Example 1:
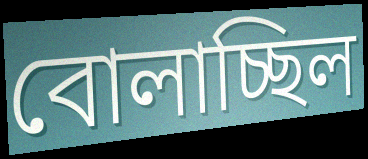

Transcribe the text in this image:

বোলাচ্ছিল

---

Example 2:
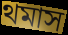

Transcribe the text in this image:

থমাস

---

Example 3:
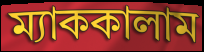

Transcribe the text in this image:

ম্যাককালাম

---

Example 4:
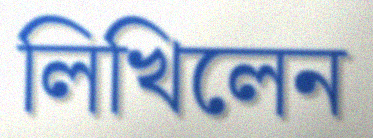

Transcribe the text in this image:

লিখিলেন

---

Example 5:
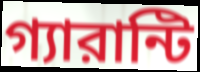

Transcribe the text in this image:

গ্যারান্টি